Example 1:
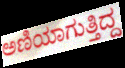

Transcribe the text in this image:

ಅಣಿಯಾಗುತ್ತಿದ್ದ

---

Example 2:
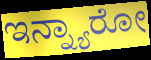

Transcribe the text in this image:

ಇನ್ನ್ಯಾರೋ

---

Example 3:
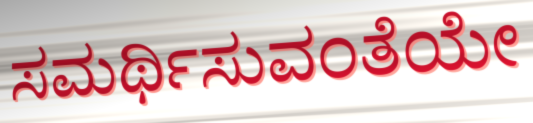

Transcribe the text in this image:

ಸಮರ್ಥಿಸುವಂತೆಯೇ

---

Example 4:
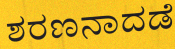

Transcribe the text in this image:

ಶರಣನಾದಡೆ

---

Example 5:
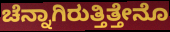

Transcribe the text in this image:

ಚೆನ್ನಾಗಿರುತ್ತಿತ್ತೇನೊ